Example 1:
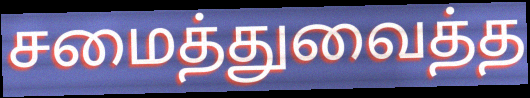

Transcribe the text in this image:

சமைத்துவைத்த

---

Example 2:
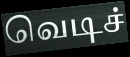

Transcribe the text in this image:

வெடிச்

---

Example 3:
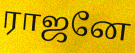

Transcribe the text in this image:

ராஜனே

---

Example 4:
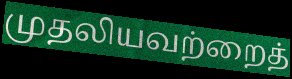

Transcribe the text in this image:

முதலியவற்றைத்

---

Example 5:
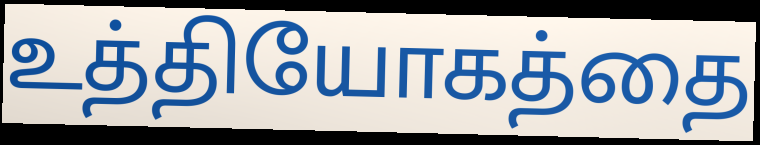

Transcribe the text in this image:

உத்தியோகத்தை